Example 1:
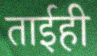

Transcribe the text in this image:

ताईही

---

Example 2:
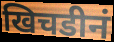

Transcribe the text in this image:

खिचडीनं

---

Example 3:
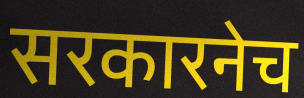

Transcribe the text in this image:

सरकारनेच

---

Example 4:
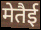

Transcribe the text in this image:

मेतैई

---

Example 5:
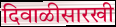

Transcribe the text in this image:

दिवाळीसारखी